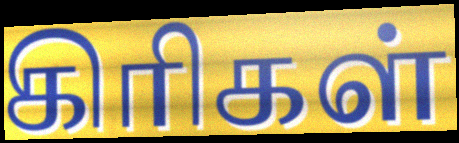
கிரிகள்